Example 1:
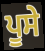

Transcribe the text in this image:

ਪੂਸੇ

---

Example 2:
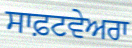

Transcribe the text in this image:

ਸਾਫ਼ਟਵੇਅਰਾ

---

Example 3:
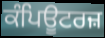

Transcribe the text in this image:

ਕੰਪਿਊਟਰਜ਼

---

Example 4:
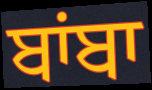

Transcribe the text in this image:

ਬਾਂਬਾ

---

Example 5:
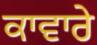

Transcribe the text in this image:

ਕਾਵਾਰੇ